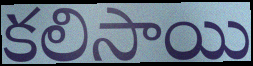
కలిసాయి